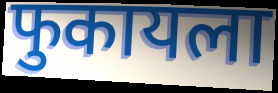
फुकायला